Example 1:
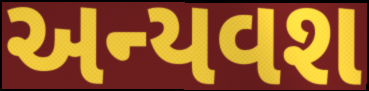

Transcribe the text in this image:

અન્યવશ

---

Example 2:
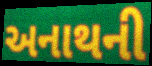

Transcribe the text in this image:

અનાથની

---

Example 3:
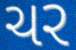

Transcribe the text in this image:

ચર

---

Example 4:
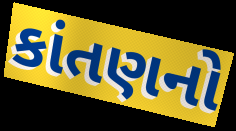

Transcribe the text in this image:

કાંતણનો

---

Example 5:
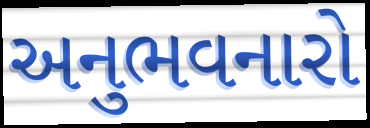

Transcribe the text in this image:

અનુભવનારો